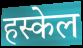
हस्केल